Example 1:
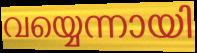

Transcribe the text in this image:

വയ്യെന്നായി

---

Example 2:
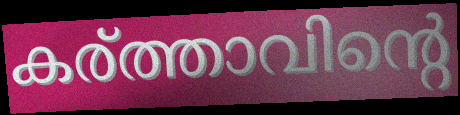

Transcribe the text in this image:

കര്ത്താവിന്റെ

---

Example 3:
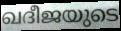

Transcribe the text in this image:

ഖദീജയുടെ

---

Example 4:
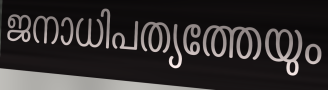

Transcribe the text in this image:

ജനാധിപത്യത്തേയും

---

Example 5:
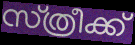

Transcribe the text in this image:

സ്‌ത്രീക്ക്